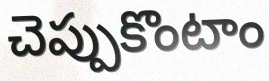
చెప్పుకొంటాం